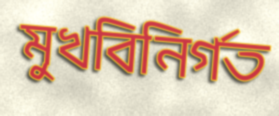
মুখবিনির্গত